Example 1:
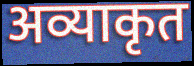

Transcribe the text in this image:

अव्याकृत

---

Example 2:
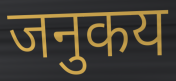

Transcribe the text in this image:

जनुकय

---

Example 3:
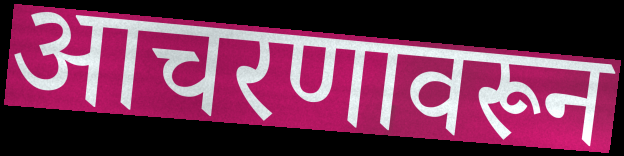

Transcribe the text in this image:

आचरणावरून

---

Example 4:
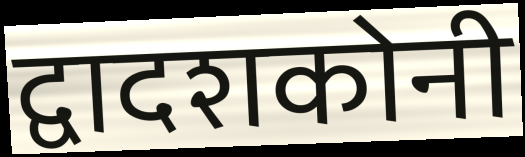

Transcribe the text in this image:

द्वादशकोनी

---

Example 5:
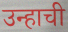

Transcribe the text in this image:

उन्हाची